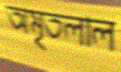
অমৃতলাল